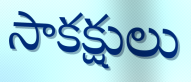
సాకక్షులు